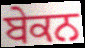
ਬੇਕਨ